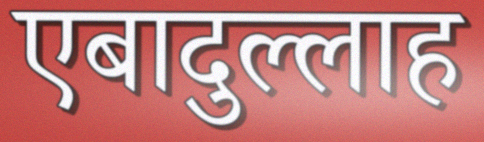
एबादुल्लाह